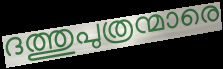
ദത്തുപുത്രന്മാരെ